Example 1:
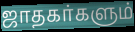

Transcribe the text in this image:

ஜாதகர்களும்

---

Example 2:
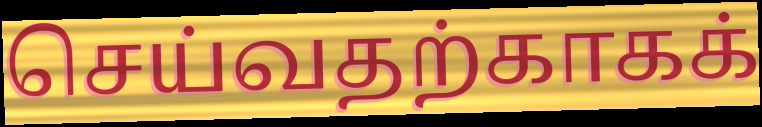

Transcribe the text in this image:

செய்வதற்காகக்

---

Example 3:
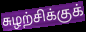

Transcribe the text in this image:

சுழற்சிக்குக்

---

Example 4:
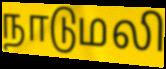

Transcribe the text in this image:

நாடுமலி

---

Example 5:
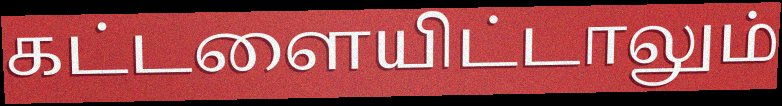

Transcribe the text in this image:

கட்டளையிட்டாலும்